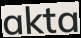
akta